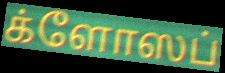
க்ளோஸப்